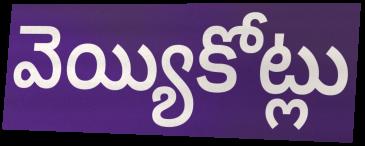
వెయ్యికోట్లు